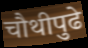
चौथीपुढे